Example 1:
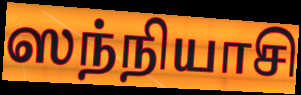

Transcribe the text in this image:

ஸந்நியாசி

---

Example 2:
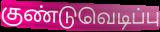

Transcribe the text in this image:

குண்டுவெடிப்பு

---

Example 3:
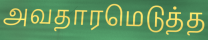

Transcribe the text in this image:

அவதாரமெடுத்த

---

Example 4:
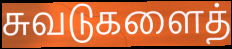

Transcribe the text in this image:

சுவடுகளைத்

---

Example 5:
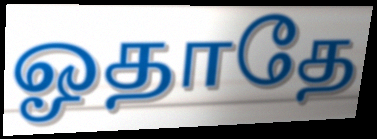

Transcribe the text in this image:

ஓதாதே